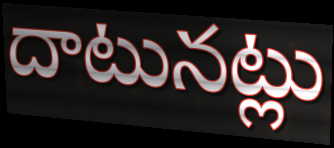
దాటునట్లు